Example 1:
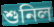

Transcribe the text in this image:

শুনিল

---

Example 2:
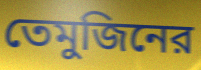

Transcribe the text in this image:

তেমুজিনের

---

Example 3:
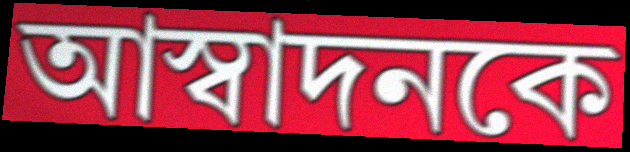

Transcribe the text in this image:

আস্বাদনকে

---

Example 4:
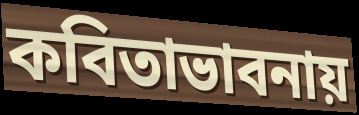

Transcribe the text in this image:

কবিতাভাবনায়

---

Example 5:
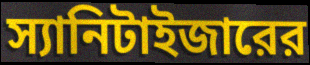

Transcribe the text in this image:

স্যানিটাইজারের